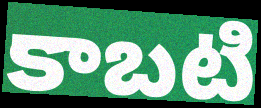
కాబటి